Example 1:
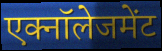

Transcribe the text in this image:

एक्नॉलेजमेंट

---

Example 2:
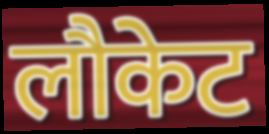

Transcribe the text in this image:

लौकेट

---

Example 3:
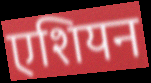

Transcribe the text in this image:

एशियन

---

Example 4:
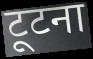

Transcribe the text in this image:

टूटना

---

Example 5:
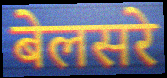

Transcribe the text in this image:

बेलसरे